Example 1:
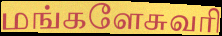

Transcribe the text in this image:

மங்களேசுவரி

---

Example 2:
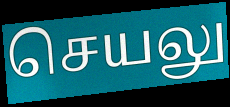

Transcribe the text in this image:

செயலு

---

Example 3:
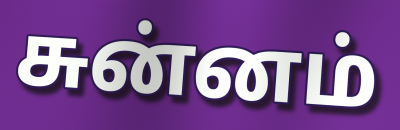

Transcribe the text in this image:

சுன்னம்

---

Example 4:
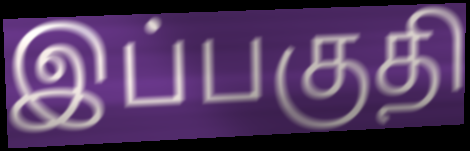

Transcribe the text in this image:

இப்பகுதி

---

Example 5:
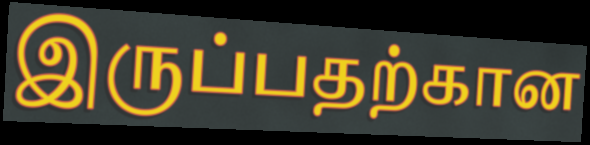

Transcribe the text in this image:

இருப்பதற்கான